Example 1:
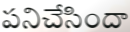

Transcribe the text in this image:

పనిచేసిందా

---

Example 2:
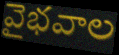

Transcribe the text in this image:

వైభవాల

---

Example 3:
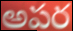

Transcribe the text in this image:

అపర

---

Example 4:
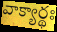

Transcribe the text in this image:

వాక్యార్థః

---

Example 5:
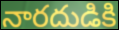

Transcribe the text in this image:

నారదుడికి